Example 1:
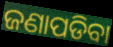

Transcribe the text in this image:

ଜଣାପଡିବା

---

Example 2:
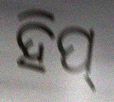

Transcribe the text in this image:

ହିପ୍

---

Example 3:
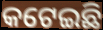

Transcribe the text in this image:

କଟେଇଛି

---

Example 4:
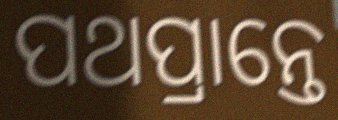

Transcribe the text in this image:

ପଥପ୍ରାନ୍ତେ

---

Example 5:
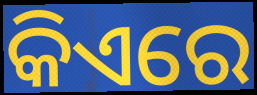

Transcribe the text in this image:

କିଏରେ